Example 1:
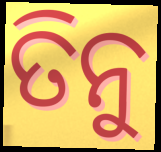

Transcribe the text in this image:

ତିନୁ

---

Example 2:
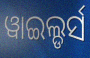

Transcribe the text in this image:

ୱାଇଲ୍ଡର୍ସ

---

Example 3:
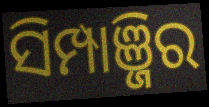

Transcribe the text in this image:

ସିମ୍ପାଞ୍ଜିର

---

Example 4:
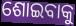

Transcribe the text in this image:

ଶୋଇବାକୁ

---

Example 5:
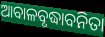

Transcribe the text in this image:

ଆବାଳବୃଦ୍ଧାବନିତା